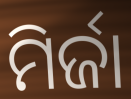
ମିର୍ଜା